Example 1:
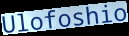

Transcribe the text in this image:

Ulofoshio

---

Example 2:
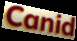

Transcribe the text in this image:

Canid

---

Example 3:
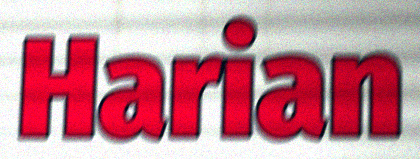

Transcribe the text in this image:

Harian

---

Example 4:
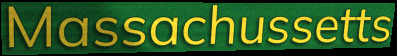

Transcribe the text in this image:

Massachussetts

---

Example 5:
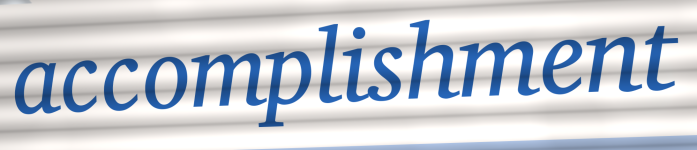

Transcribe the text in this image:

accomplishment